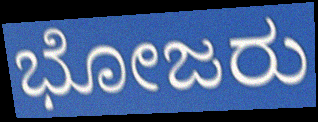
ಭೋಜರು